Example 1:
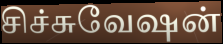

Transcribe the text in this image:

சிச்சுவேஷன்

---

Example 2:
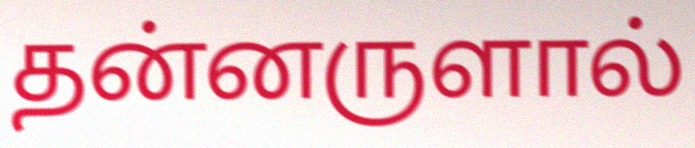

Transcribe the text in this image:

தன்னருளால்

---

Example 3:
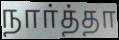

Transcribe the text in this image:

நார்த்தா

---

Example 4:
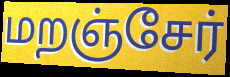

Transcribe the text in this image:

மறஞ்சேர்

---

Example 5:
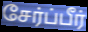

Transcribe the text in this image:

சேர்ப்பீர்